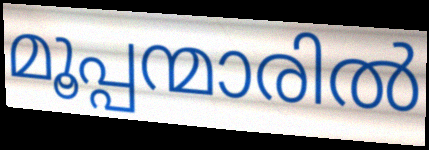
മൂപ്പന്മാരിൽ